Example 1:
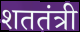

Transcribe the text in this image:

शततंत्री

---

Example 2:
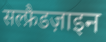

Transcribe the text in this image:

सल्फ़ैडज़ाइन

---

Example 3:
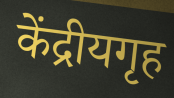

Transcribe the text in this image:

केंद्रीयगृह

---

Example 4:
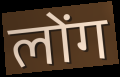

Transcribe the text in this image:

लोंग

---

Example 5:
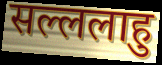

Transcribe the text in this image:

सल्ललाहु